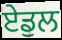
ਏਡੁਲ